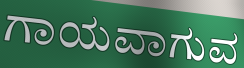
ಗಾಯವಾಗುವ